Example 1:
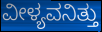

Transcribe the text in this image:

ವೀಳ್ಯವನಿತ್ತು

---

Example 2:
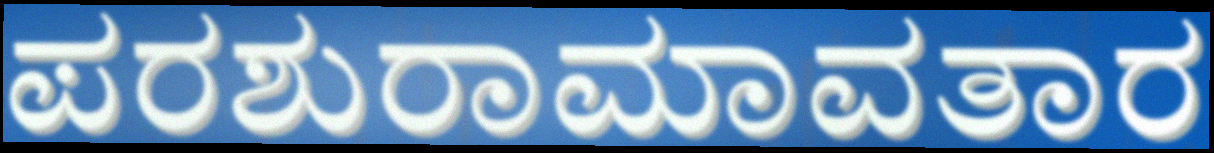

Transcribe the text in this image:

ಪರಶುರಾಮಾವತಾರ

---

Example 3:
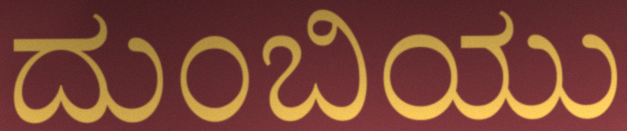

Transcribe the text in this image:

ದುಂಬಿಯು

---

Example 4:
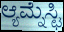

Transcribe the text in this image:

ಆ್ಯಮ್ನೆಸ್ಟಿ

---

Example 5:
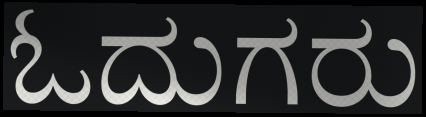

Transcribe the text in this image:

ಓದುಗರು